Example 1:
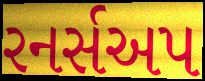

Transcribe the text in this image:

રનર્સઅપ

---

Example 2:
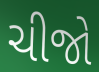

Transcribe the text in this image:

ચીજો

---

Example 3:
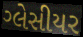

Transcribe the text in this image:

ગ્લેસીયર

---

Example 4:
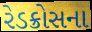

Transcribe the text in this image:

રેડક્રોસના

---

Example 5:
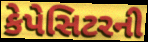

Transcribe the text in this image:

કેપેસિટરની